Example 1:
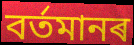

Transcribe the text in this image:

বৰ্তমানৰ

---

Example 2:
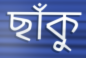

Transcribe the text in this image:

ছাঁকু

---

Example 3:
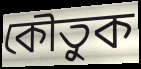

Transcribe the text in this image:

কৌতুক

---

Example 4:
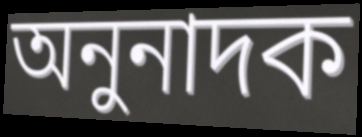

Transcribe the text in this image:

অনুনাদক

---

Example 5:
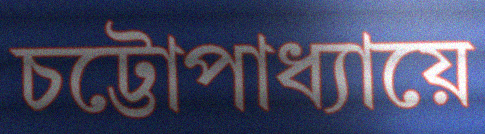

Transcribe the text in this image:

চট্টোপাধ্যায়ে